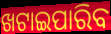
ଖଟାଇପାରିବ